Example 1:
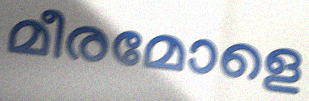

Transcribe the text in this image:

മീരമോളെ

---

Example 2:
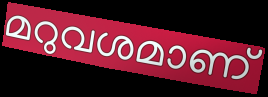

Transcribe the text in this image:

മറുവശമാണ്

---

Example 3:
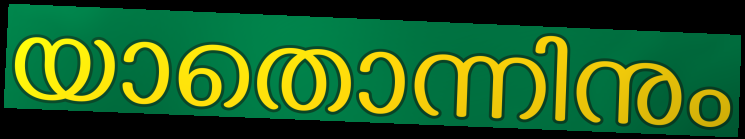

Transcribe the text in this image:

യാതൊന്നിനും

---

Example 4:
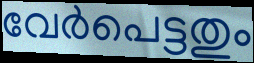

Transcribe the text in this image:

വേർപെട്ടതും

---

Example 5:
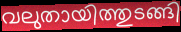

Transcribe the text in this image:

വലുതായിത്തുടങ്ങി